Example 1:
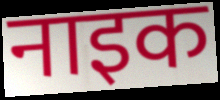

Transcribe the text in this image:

नाइक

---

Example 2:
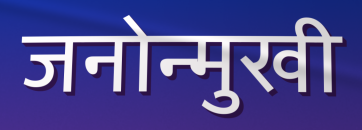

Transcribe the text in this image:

जनोन्मुखी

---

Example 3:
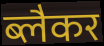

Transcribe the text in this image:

ब्लैकर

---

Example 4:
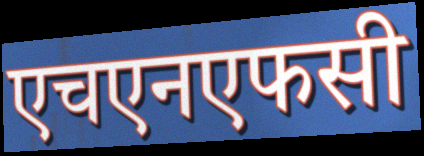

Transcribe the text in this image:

एचएनएफसी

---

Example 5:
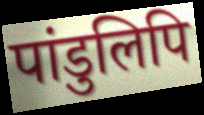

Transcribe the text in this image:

पांडुलिपि